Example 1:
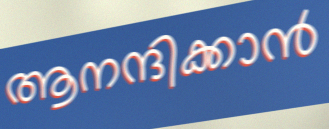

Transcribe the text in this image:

ആനന്ദിക്കാൻ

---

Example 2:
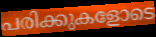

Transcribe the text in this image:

പരിക്കുകളോടെ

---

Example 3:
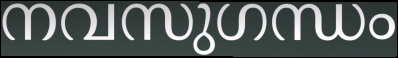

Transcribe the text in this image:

നവസുഗന്ധം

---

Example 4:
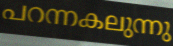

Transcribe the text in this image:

പറന്നകലുന്നു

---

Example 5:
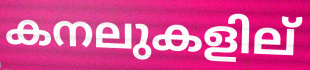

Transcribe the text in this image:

കനലുകളില്